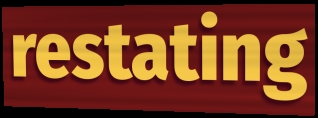
restating